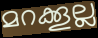
മറക്കൂല്ല